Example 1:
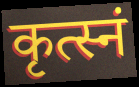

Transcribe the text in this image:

कृत्स्नं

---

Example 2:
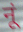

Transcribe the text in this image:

नूं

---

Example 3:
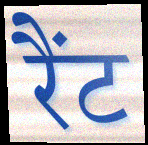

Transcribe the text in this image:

रैंट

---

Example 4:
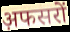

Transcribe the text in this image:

अ़फसरों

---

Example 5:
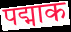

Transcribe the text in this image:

पद्माक